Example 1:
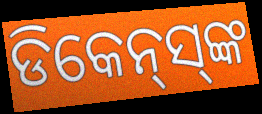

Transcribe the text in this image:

ଡିକେନ୍‌ସ୍‌ଙ୍କ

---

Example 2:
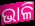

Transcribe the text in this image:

ଭାଳି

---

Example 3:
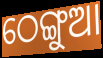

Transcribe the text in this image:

ଠେଙ୍ଗୁଆ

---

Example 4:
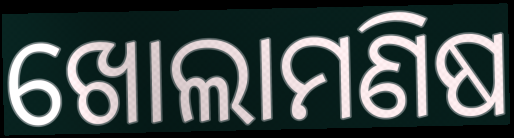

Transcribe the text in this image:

ଖୋଲାମଣିଷ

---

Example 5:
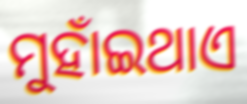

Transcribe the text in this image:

ମୁହାଁଇଥାଏ